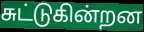
சுட்டுகின்றன